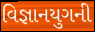
વિજ્ઞાનયુગની